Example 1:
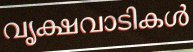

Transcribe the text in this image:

വൃക്ഷവാടികൾ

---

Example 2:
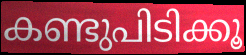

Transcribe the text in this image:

കണ്ടുപിടിക്കൂ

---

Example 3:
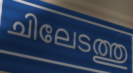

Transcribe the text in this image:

ചിലേടത്തു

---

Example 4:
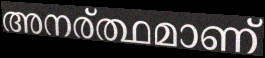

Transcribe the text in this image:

അനര്ത്ഥമാണ്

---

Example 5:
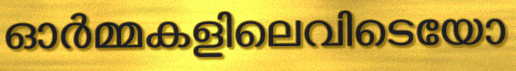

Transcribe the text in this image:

ഓർമ്മകളിലെവിടെയോ